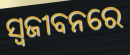
ସ୍ଵଜୀବନରେ